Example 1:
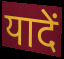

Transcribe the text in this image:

यादें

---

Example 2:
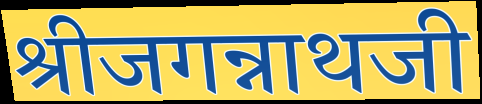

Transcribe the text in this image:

श्रीजगन्नाथजी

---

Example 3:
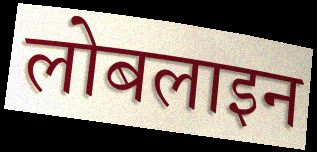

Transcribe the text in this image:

लोबलाइन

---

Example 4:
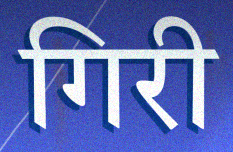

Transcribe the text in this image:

गिरी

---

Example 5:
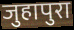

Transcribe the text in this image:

जुहापुरा